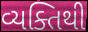
વ્યક્તિથી